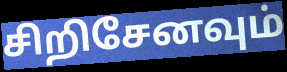
சிறிசேனவும்